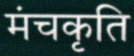
मंचकृति